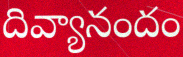
దివ్యానందం